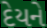
દેયને